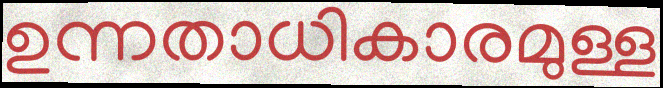
ഉന്നതാധികാരമുള്ള